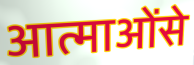
आत्माओंसे